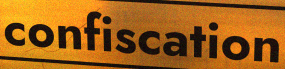
confiscation